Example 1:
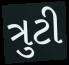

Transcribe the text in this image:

ત્રુટી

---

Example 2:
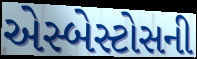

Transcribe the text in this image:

એસ્બેસ્ટોસની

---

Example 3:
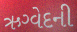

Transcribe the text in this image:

ઋગ્વેદની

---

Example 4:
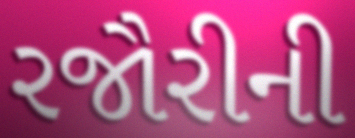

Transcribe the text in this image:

રજૌરીની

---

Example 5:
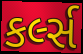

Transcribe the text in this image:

કર્લ્સ